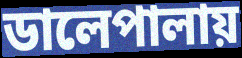
ডালেপালায়